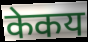
केकय